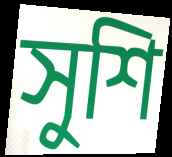
সুশি